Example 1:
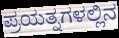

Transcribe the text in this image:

ಪ್ರಯತ್ನಗಳಲ್ಲಿನ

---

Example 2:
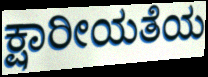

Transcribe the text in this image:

ಕ್ಷಾರೀಯತೆಯ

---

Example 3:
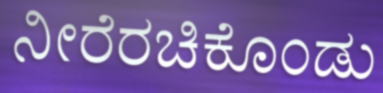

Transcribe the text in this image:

ನೀರೆರಚಿಕೊಂಡು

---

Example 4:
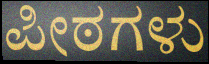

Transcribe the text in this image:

ಪೀಠಗಳು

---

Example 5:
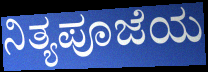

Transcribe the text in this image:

ನಿತ್ಯಪೂಜೆಯ